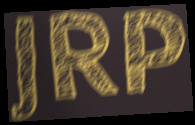
JRP